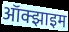
ऑक्झाइम